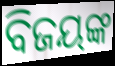
ବିଜୟଙ୍କ